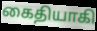
கைதியாகி